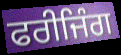
ਫਰੀਜਿੰਗ